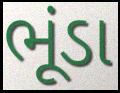
ભૂંડા